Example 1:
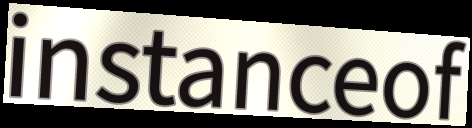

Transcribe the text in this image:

instanceof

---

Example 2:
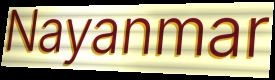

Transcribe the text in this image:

Nayanmar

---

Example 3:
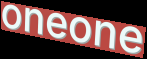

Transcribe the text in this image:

oneone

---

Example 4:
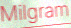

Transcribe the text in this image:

Milgram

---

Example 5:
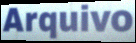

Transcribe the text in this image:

Arquivo